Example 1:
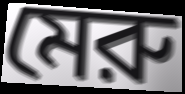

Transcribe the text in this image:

মেৰু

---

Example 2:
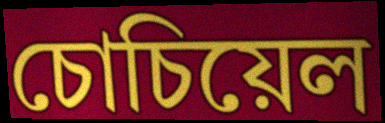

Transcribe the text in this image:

চোচিয়েল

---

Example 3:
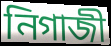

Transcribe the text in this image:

নিগাজী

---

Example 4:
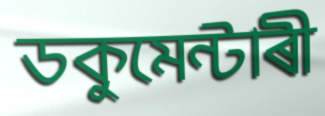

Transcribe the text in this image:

ডকুমেন্টাৰী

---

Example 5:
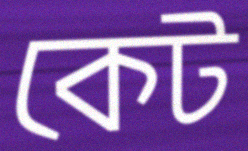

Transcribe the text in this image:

কেট